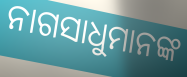
ନାଗସାଧୁମାନଙ୍କ